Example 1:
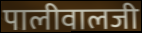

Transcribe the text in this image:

पालीवालजी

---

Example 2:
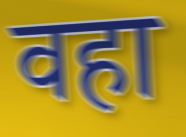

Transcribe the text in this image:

वहा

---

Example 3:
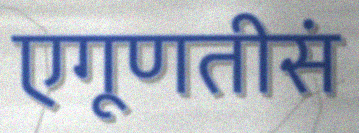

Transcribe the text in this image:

एगूणतीसं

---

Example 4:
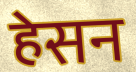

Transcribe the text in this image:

हेसन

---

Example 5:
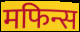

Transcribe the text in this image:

मफिन्स